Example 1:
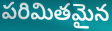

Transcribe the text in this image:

పరిమితమైన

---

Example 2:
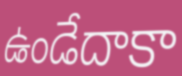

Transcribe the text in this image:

ఉండేదాకా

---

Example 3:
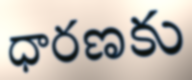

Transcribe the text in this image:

ధారణకు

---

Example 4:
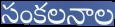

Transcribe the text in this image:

సంకలనాల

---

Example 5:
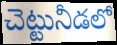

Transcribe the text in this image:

చెట్టునీడలో